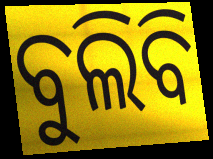
ବୁଲିବି